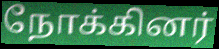
நோக்கினர்